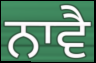
ਨਾਵੈ